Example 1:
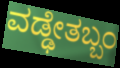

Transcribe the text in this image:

ವಡ್ಢೇತಬ್ಬಂ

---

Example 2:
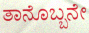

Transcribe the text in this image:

ತಾನೊಬ್ಬನೇ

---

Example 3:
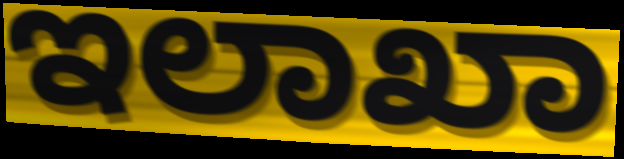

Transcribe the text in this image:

ಇಲಾಖಾ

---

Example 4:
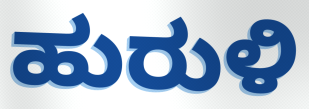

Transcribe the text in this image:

ಹುರುಳಿ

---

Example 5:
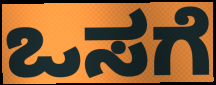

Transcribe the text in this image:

ಒಸಗೆ